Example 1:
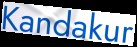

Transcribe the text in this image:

Kandakur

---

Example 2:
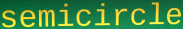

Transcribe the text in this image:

semicircle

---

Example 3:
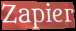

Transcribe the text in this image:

Zapier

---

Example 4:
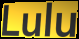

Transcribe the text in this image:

Lulu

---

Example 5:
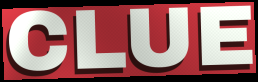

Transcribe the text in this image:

CLUE